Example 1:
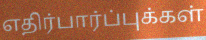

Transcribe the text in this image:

எதிர்பார்ப்புக்கள்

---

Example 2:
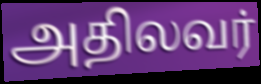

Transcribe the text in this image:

அதிலவர்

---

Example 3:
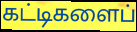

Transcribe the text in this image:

கட்டிகளைப்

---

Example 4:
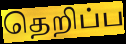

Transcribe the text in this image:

தெறிப்ப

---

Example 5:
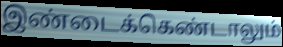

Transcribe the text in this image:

இண்டைக்கெண்டாலும்